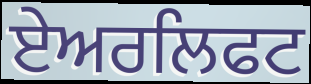
ਏਅਰਲਿਫਟ